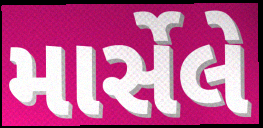
માર્સેલે